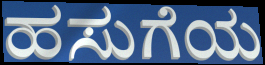
ಹಸುಗೆಯ